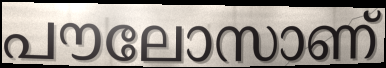
പൗലോസാണ്